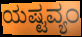
ಯಷ್ಟವ್ಯಂ